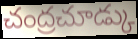
చంద్రచూడ్కు